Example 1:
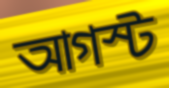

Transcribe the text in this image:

আগস্ট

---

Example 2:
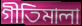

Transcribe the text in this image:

গীতিমালা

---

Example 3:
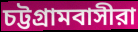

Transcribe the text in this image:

চট্টগ্রামবাসীরা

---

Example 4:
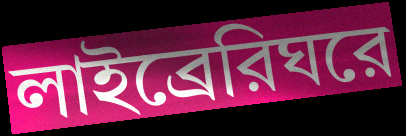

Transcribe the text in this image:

লাইব্রেরিঘরে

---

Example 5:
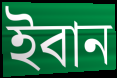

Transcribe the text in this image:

ইবান